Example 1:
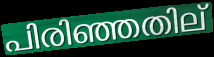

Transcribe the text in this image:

പിരിഞ്ഞതില്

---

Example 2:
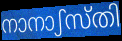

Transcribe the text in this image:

നാനാഽസ്തി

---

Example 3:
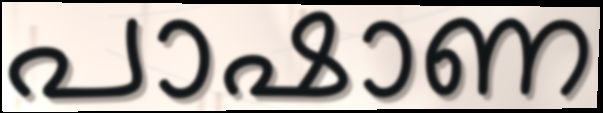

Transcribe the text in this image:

പാഷാണ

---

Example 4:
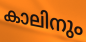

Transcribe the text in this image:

കാലിനും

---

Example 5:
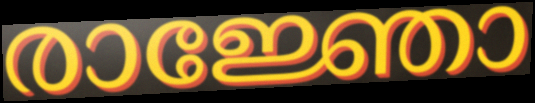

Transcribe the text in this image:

രാജ്ഞോ